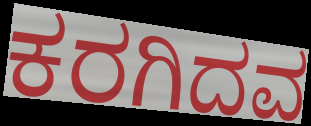
ಕರಗಿದವ